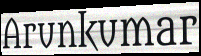
Arunkumar